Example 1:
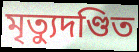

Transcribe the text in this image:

মৃত্যুদণ্ডিত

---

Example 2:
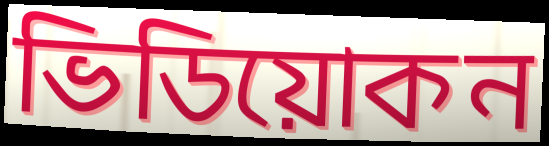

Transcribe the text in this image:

ভিডিয়োকন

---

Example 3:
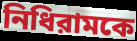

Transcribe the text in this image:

নিধিরামকে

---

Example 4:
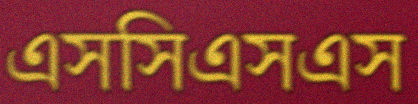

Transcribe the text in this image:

এসসিএসএস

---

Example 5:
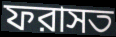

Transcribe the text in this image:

ফরাসত